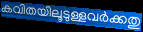
കവിതയിലൂടുള്ളവർക്കതു